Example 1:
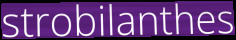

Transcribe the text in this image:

strobilanthes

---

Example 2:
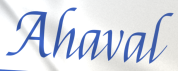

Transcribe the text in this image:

Ahaval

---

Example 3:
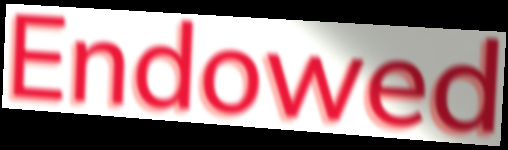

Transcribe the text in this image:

Endowed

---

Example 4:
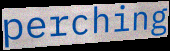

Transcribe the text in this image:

perching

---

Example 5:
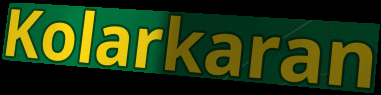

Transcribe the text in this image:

Kolarkaran